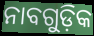
ନାବଗୁଡ଼ିକ